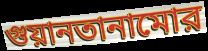
গুয়ানতানামোর